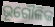
ଭୂଗୌଳିକ